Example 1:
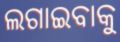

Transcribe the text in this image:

ଲଗାଇବାକୁ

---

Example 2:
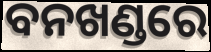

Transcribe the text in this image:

ବନଖଣ୍ଡରେ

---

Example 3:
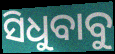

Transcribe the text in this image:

ସିଧୁବାବୁ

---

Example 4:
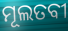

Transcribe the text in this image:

ମୂଲତବୀ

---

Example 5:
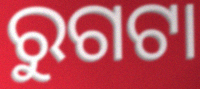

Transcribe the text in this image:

ରୁଗଟା